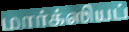
மார்க்ஸியப்